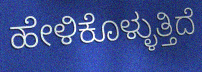
ಹೇಳಿಕೊಳ್ಳುತ್ತಿದೆ